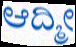
ಆದ್ಮೀ